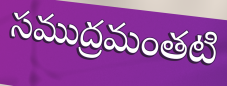
సముద్రమంతటి